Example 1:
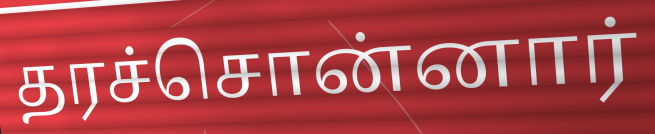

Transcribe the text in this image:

தரச்சொன்னார்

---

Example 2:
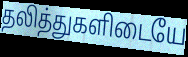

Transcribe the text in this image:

தலித்துகளிடையே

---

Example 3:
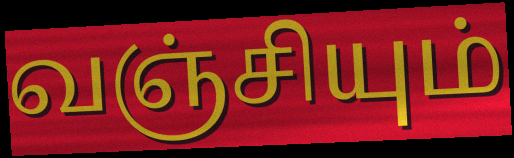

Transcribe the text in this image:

வஞ்சியும்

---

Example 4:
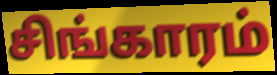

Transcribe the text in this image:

சிங்காரம்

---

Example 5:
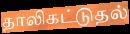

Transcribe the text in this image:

தாலிகட்டுதல்